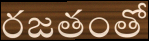
రజతంతో